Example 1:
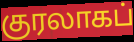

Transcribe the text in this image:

குரலாகப்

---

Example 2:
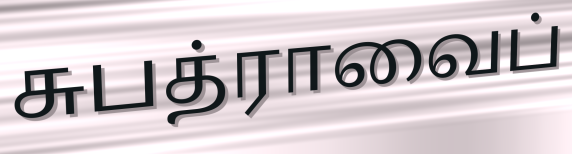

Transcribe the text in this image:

சுபத்ராவைப்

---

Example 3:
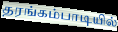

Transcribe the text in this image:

தரங்கம்பாடியில்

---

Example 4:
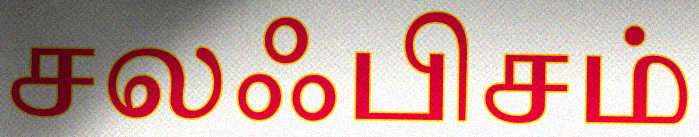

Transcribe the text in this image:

சலஃபிசம்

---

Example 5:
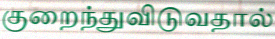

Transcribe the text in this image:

குறைந்துவிடுவதால்